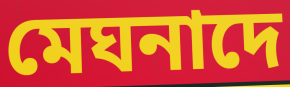
মেঘনাদে